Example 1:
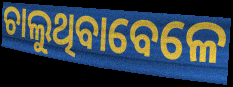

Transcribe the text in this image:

ଚାଲୁଥିବାବେଳେ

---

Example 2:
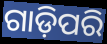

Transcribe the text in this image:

ଗାଡ଼ିପରି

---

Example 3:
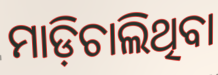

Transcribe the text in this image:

ମାଡ଼ିଚାଲିଥିବା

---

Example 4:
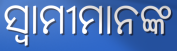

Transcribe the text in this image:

ସ୍ବାମୀମାନଙ୍କ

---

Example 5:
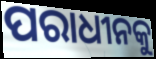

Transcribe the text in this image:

ପରାଧୀନକୁ